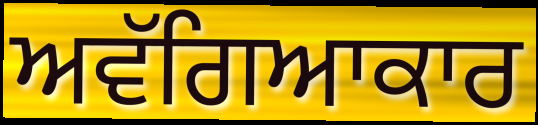
ਅਵੱਗਿਆਕਾਰ